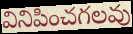
వినిపించగలవు